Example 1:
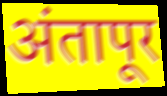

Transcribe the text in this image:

अंतापूर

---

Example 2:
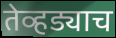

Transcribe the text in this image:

तेव्हड्याच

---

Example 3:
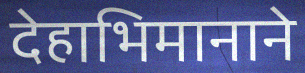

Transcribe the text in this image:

देहाभिमानाने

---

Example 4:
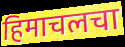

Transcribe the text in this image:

हिमाचलचा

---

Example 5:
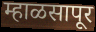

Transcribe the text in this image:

म्हाळसापूर